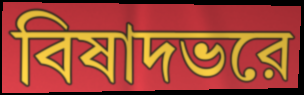
বিষাদভরে